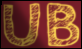
UB